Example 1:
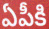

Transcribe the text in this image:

ఏపీకి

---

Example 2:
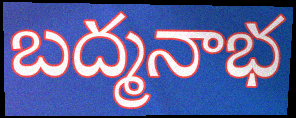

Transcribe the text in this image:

బద్మనాభ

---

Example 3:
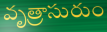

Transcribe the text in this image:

వృత్రాసురుం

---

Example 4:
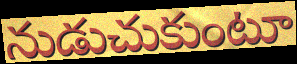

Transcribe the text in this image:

నుడుచుకుంటూ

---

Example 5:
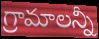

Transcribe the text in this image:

గ్రామాలన్నీ